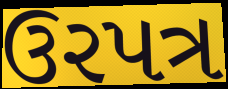
ઉરપત્ર